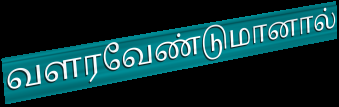
வளரவேண்டுமானால்